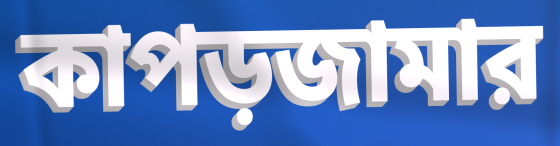
কাপড়জামার